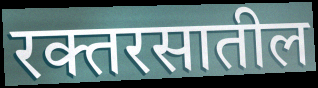
रक्तरसातील